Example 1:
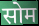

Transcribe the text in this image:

सोम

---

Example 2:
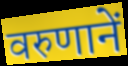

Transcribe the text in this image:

वरुणानें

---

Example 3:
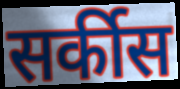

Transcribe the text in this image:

सर्कीस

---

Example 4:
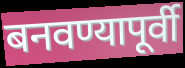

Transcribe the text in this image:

बनवण्यापूर्वी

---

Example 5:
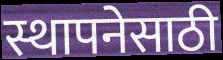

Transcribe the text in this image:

स्थापनेसाठी